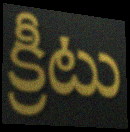
క్రీటు